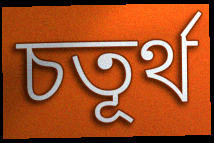
চতূর্থ